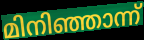
മിനിഞ്ഞാന്ന്